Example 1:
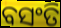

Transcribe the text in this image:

ବସଂତି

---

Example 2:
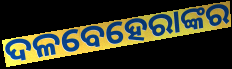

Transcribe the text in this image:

ଦଳବେହେରାଙ୍କର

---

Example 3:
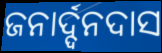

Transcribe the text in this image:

ଜନାର୍ଦ୍ଦନଦାସ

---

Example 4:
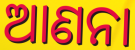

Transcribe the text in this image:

ଆଣନା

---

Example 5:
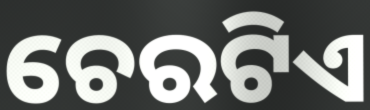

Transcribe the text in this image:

ଚେରଟିଏ